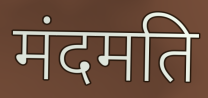
मंदमति